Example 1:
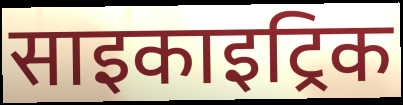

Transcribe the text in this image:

साइकाइट्रिक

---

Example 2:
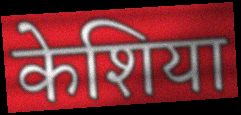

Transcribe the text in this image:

केशिया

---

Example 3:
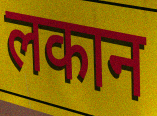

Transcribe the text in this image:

लकान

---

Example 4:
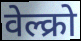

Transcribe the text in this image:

वेल्क्रो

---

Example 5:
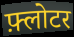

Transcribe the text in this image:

फ़्लोटर